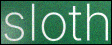
sloth